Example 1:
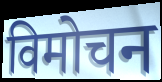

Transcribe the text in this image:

विमोचन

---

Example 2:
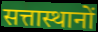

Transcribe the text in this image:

सत्तास्थानों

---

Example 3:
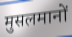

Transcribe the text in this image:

मुसलमानों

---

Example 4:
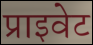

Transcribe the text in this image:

प्राइवेट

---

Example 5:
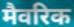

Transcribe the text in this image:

मैवरिक